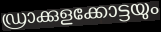
ഡ്രാക്കുളക്കോട്ടയും